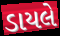
ડાયલે